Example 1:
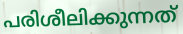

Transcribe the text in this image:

പരിശീലിക്കുന്നത്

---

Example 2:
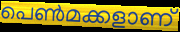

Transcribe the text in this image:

പെൺമക്കളാണ്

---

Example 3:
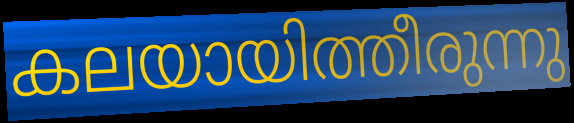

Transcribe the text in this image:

കലയായിത്തീരുന്നു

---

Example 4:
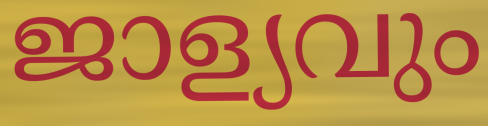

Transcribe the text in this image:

ജാള്യവും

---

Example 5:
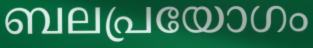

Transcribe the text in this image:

ബലപ്രയോഗം